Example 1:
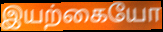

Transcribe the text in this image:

இயற்கையோ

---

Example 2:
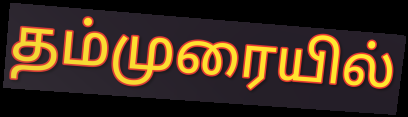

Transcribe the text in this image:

தம்முரையில்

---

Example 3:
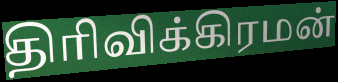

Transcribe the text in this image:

திரிவிக்கிரமன்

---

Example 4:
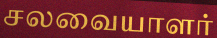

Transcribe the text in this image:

சலவையாளர்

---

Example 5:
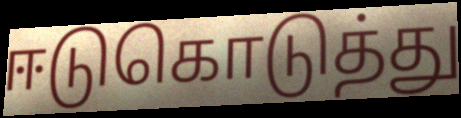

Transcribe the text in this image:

ஈடுகொடுத்து